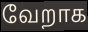
வேறாக